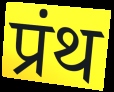
प्रंथ